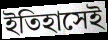
ইতিহাসেই